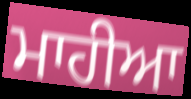
ਮਾਹੀਆ